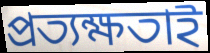
প্রত্যক্ষতাই